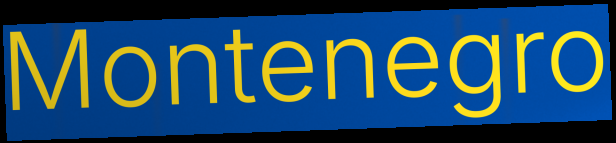
Montenegro